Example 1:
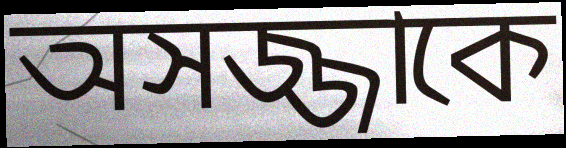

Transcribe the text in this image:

অসজ্জাকে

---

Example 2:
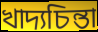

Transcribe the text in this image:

খাদ্যচিন্তা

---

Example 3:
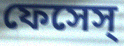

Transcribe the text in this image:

ফেসেস্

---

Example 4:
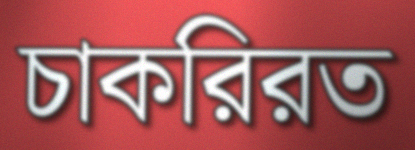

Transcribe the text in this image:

চাকরিরত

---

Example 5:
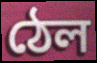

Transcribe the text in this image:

ঠেল